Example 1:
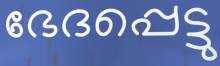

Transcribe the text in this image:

ഭേദപ്പെട്ടു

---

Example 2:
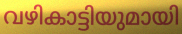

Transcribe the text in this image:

വഴികാട്ടിയുമായി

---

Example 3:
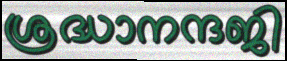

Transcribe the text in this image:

ശ്രദ്ധാനന്ദജി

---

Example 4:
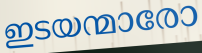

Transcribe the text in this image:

ഇടയന്മാരോ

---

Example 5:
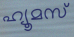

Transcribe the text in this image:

ഹ്യൂമസ്